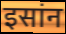
इसांन